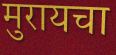
मुरायचा